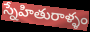
స్నేహితురాళ్ళం